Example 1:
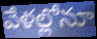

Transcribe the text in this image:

వేళల్లోనూ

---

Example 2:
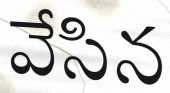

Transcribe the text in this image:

వేసిన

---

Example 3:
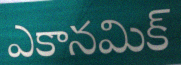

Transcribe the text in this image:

ఎకానమిక్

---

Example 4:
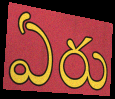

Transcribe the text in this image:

ఏరు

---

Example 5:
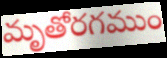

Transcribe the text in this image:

మృతోరగముం